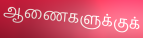
ஆணைகளுக்குக்